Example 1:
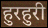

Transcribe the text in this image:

हुरहुरी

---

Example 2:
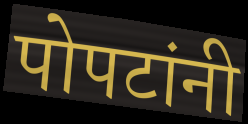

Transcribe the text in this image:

पोपटांनी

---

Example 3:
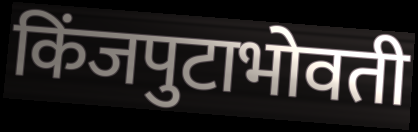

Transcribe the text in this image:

किंजपुटाभोवती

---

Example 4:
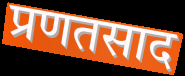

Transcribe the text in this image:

प्रणतसाद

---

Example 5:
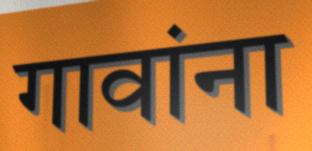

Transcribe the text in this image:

गावांना